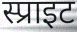
स्प्राइट